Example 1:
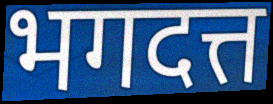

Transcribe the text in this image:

भगदत्त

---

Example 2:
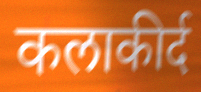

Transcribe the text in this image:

कलाकीर्द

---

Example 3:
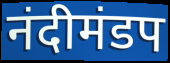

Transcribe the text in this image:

नंदीमंडप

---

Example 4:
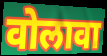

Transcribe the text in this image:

वोलावा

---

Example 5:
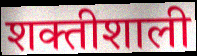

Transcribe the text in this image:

शक्‍तीशाली